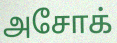
அசோக்